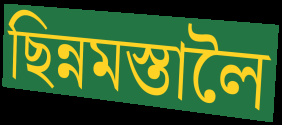
ছিন্নমস্তালৈ